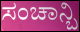
ಸಂಚಾನ್ಬಿ